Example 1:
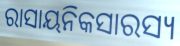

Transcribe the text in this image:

ରାସାୟନିକସାରସ୍ୟ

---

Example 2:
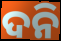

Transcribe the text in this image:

ଦନି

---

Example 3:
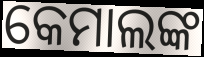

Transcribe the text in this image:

କେମାଲଙ୍କ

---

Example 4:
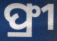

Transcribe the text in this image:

ଫ୍ରୀ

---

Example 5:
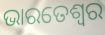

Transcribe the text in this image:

ଭାରତେଶ୍ୱର